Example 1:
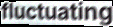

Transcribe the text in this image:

fluctuating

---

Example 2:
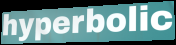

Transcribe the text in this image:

hyperbolic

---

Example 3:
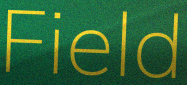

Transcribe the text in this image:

Field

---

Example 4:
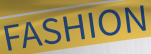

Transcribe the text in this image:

FASHION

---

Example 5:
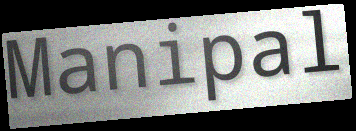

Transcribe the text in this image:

Manipal